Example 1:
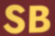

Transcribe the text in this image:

SB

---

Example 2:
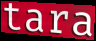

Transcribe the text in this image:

tara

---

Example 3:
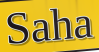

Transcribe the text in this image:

Saha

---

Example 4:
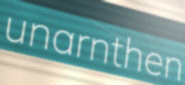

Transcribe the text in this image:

unarnthen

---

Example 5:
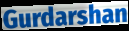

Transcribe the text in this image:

Gurdarshan